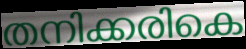
തനിക്കരികെ